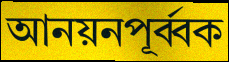
আনয়নপূর্ব্বক